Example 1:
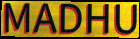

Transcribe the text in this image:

MADHU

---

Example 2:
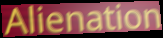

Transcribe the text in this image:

Alienation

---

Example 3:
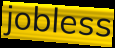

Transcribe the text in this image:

jobless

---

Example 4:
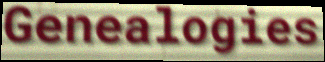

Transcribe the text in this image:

Genealogies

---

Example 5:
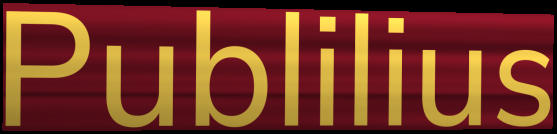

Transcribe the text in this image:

Publilius